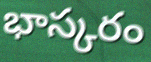
భాస్కరం